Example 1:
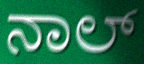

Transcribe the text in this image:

ನಾಲ್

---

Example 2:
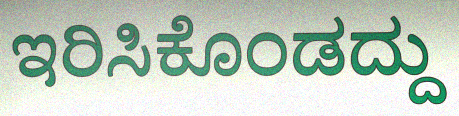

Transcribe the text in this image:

ಇರಿಸಿಕೊಂಡದ್ದು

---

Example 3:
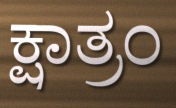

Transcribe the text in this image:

ಕ್ಷಾತ್ರಂ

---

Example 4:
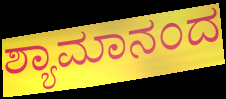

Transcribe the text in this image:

ಶ್ಯಾಮಾನಂದ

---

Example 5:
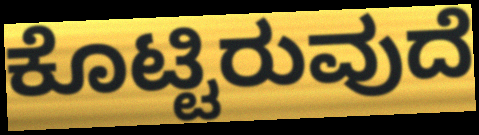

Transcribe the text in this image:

ಕೊಟ್ಟಿರುವುದೆ